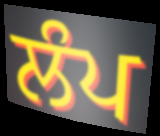
ਲੰਪ